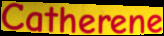
Catherene